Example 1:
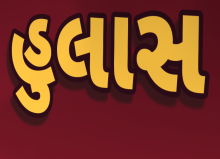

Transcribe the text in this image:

હુલાસ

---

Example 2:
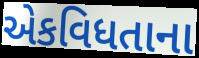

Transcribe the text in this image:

એકવિધતાના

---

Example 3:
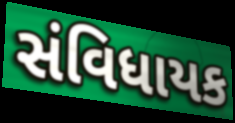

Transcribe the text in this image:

સંવિધાયક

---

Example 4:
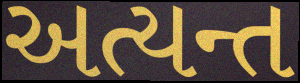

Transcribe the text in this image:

અત્યન્ત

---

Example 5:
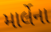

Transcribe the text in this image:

માર્લેના